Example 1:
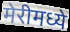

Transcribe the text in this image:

मेरीमध्ये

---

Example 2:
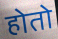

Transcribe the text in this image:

होतो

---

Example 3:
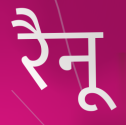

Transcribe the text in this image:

रैनू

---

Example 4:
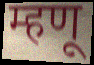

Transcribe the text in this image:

म्हणू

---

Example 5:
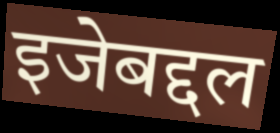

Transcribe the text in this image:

इजेबद्दल